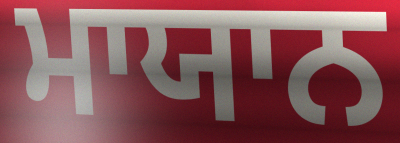
ਮਾਯਾਨ